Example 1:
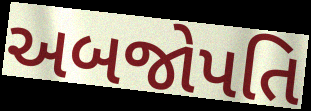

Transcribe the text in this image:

અબજોપતિ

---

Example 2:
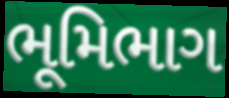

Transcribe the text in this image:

ભૂમિભાગ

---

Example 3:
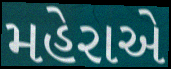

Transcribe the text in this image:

મહેરાએ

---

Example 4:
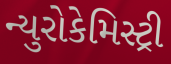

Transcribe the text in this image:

ન્યુરોકેમિસ્ટ્રી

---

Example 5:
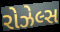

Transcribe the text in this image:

રોઝેલ્સ